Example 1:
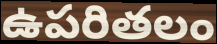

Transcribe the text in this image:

ఉపరితలం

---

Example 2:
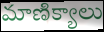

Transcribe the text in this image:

మాణిక్యాలు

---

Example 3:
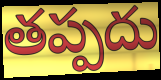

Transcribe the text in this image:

తప్పదు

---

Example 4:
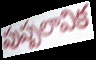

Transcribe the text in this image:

పుష్పలావిక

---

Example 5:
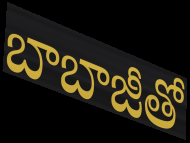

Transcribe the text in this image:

బాబాజీతో